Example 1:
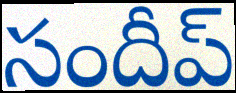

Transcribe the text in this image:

సందీప్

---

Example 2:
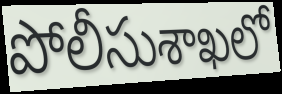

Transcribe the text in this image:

పోలీసుశాఖలో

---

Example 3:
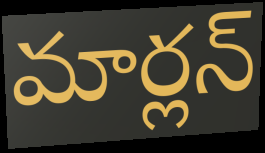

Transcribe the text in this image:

మార్లన్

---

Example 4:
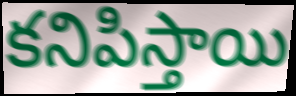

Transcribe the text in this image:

కనిపిస్తాయి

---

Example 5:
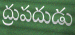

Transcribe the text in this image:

ద్రుపదుడు